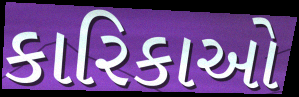
કારિકાઓ